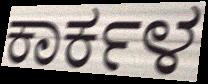
ಕಾರ್ಕಳ